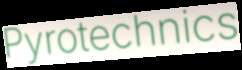
Pyrotechnics